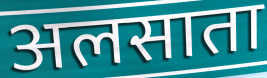
अलसाता